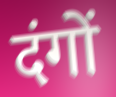
दंगों